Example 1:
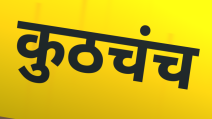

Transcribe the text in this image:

कुठचंच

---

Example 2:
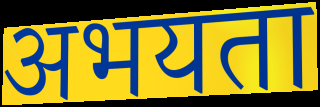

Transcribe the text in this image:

अभयता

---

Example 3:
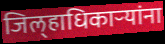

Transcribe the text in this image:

जिल्हाधिकाऱ्यांना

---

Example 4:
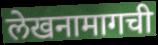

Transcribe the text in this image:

लेखनामागची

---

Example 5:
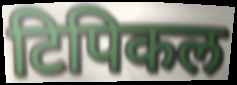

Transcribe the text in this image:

टिपिकल